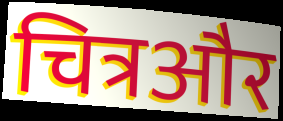
चित्रऔर